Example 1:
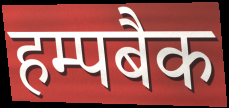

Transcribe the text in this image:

हम्पबैक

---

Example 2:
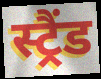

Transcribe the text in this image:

स्ट्रैंड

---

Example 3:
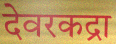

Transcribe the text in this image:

देवरकद्रा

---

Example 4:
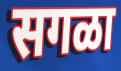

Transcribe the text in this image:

सगळा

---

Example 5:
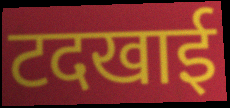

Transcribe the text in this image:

टदखाई